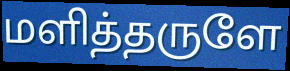
மளித்தருளே